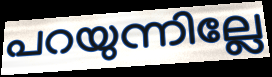
പറയുന്നില്ലേ